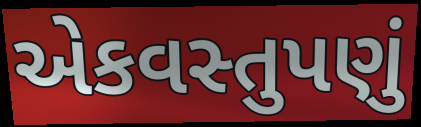
એકવસ્તુપણું